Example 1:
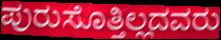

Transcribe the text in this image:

ಪುರುಸೊತ್ತಿಲ್ಲದವರು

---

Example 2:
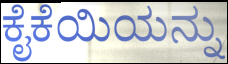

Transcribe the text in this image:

ಕೈಕೆಯಿಯನ್ನು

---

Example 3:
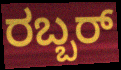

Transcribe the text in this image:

ರಬ್ಬರ್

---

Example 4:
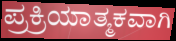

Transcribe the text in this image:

ಪ್ರಕ್ರಿಯಾತ್ಮಕವಾಗಿ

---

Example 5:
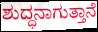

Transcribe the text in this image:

ಶುದ್ಧನಾಗುತ್ತಾನೆ